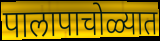
पालापाचोळ्यात